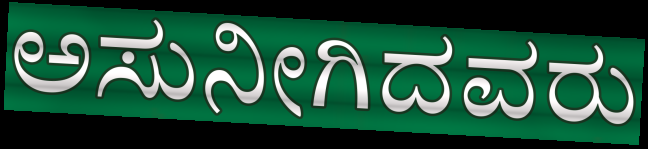
ಅಸುನೀಗಿದವರು